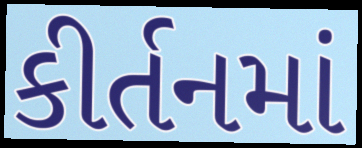
કીર્તનમાં